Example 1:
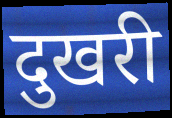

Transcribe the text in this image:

दुखरी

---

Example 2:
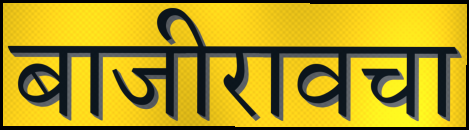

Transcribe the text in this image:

बाजीरावचा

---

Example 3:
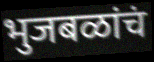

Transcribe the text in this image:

भुजबळांचं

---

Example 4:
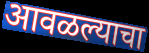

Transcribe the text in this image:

आवळल्याचा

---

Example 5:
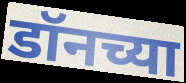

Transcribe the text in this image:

डॉनच्या